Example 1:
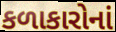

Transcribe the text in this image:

કળાકારોનાં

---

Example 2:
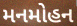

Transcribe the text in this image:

મનમોહન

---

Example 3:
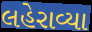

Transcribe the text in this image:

લહેરાવ્યા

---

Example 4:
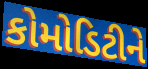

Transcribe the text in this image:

કોમોડિટીને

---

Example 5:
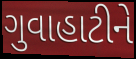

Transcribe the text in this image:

ગુવાહાટીને